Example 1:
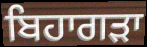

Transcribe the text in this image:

ਬਿਹਾਗੜਾ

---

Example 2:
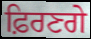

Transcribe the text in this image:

ਫ਼ਿਰਣਗੇ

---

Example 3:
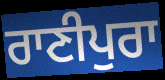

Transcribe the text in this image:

ਰਾਣੀਪੁਰਾ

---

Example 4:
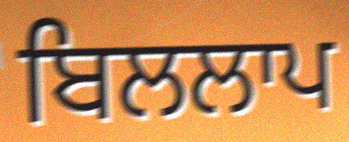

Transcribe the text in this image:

ਬਿਲਲਾਪ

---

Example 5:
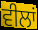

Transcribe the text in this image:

ਵੀਲਾਂ